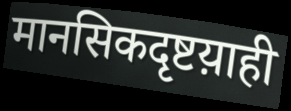
मानसिकदृष्टय़ाही